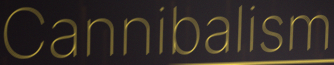
Cannibalism